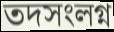
তদসংলগ্ন